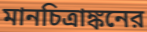
মানচিত্রাঙ্কনের